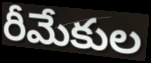
రీమేకుల